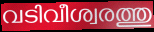
വടിവീശ്വരത്തു